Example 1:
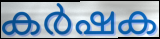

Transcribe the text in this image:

കർഷക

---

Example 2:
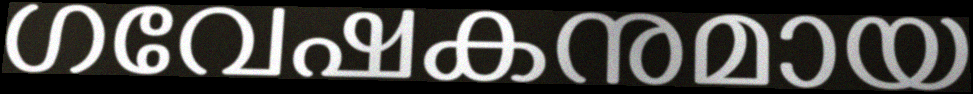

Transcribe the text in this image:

ഗവേഷകനുമായ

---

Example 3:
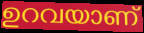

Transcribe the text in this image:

ഉറവയാണ്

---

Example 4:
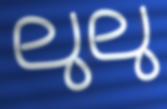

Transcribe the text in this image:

ലുലു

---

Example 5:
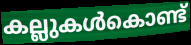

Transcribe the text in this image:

കല്ലുകൾകൊണ്ട്